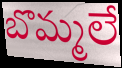
బొమ్మలే